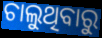
ଚାଲୁଥିବାରୁ